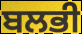
ਬਲਭੀ